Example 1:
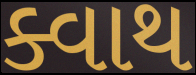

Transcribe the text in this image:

ક્વાથ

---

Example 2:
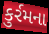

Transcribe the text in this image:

કુર્રમના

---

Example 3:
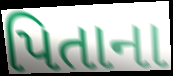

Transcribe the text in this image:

પિતાના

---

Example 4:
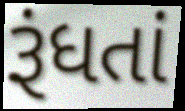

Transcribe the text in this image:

રૂંધતાં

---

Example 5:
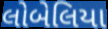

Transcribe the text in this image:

લોબેલિયા